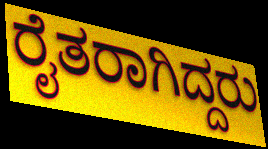
ರೈತರಾಗಿದ್ದರು